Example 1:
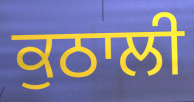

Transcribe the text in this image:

ਕੁਠਾਲੀ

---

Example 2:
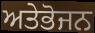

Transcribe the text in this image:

ਅਤੇਭੋਜਨ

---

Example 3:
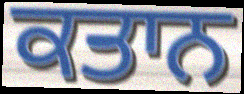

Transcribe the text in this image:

ਕਤਾਨ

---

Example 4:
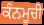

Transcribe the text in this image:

ਕੰਨਮੂਚੀ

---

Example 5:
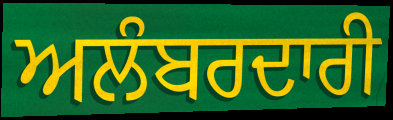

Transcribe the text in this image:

ਅਲੰਬਰਦਾਰੀ